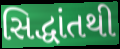
સિદ્ધાંતથી